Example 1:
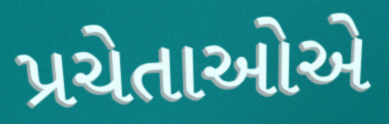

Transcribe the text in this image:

પ્રચેતાઓએ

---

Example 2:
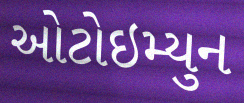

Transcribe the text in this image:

ઓટોઇમ્યુન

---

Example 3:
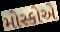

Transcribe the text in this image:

મોસ્કોએ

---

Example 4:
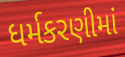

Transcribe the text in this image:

ધર્મકરણીમાં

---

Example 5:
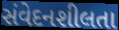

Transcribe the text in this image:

સંવેદનશીલતા